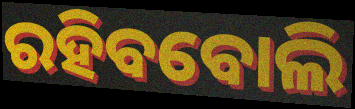
ରହିବବୋଲି